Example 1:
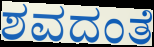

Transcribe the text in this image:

ಶವದಂತೆ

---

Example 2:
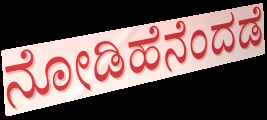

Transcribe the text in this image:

ನೋಡಿಹೆನೆಂದಡೆ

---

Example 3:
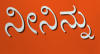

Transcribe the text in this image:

ನೀನಿನ್ನು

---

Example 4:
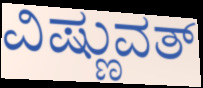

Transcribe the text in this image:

ವಿಷ್ಣುವತ್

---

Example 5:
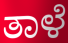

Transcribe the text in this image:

ತಾಳೆ